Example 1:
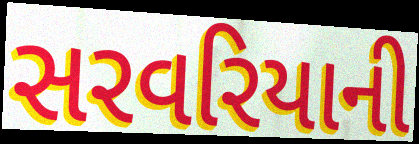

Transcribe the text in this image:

સરવરિયાની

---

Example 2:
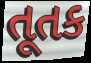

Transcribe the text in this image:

તૂતક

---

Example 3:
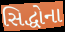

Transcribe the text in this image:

સિદ્ધોના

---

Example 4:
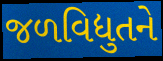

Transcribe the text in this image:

જળવિદ્યુતને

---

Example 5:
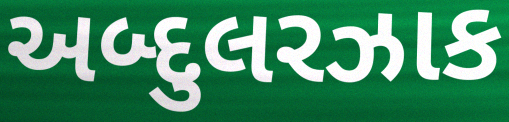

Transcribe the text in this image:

અબ્દુલરઝાક